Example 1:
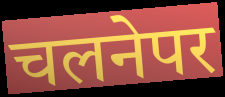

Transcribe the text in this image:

चलनेपर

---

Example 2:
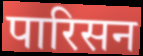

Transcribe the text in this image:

पारिसन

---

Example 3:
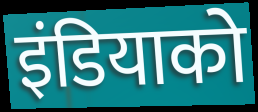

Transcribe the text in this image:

इंडियाको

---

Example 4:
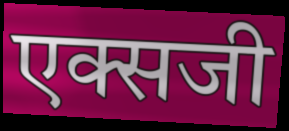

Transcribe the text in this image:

एक्सजी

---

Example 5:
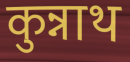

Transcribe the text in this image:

कुन्नाथ